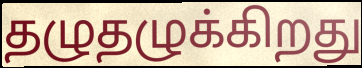
தழுதழுக்கிறது